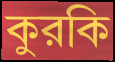
কুরকি